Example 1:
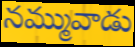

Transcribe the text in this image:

నమ్మువాడు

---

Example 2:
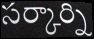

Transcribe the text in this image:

సర్కార్ని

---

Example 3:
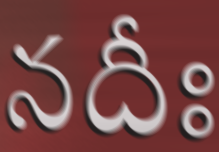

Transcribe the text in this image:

నదీః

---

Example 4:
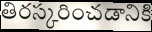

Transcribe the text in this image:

తిరస్కరించడానికి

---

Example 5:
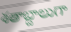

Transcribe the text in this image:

శతాబ్దాలుగా